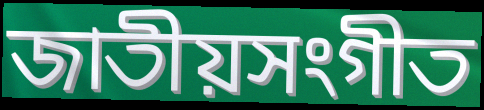
জাতীয়সংগীত